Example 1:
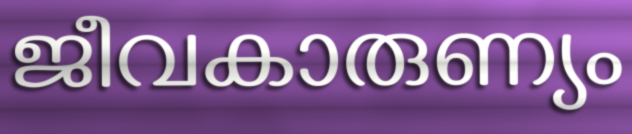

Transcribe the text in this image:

ജീവകാരുണ്യം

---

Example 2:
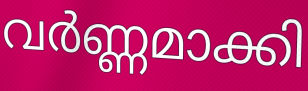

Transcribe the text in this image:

വർണ്ണമാക്കി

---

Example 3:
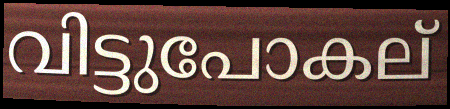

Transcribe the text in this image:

വിട്ടുപോകല്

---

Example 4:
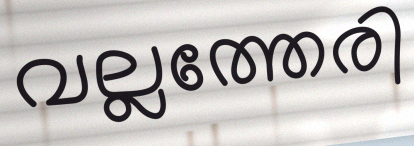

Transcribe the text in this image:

വല്ലത്തേരി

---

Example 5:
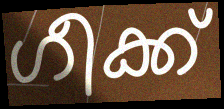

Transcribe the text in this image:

ഗീക്ക്